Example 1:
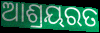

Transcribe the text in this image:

ଆଶ୍ରୟରତ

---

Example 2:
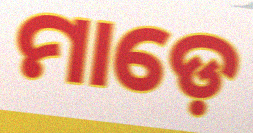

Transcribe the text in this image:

ମାଡ଼େ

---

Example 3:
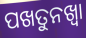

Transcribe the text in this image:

ପଖତୁନଖ୍ୱା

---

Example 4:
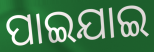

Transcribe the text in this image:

ପାଇଯାଇ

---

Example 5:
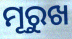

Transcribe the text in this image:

ମୂରୁଖ